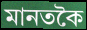
মানতকৈ